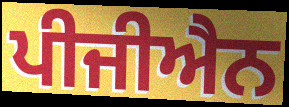
ਪੀਜੀਐਨ